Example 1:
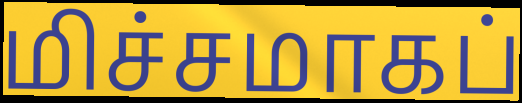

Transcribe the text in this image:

மிச்சமாகப்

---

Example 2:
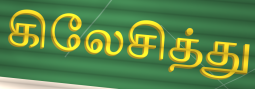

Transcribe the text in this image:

கிலேசித்து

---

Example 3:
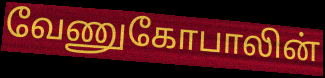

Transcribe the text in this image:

வேணுகோபாலின்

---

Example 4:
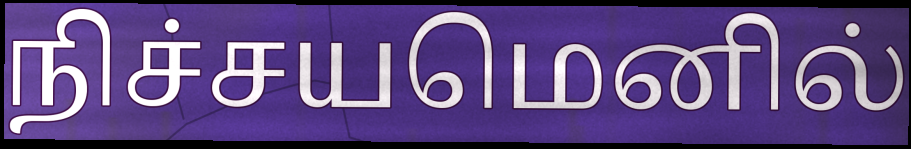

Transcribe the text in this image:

நிச்சயமெனில்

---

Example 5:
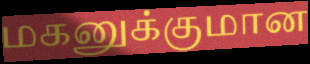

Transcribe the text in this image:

மகனுக்குமான